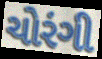
ચોરંગી